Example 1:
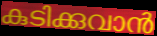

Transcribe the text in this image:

കുടിക്കുവാൻ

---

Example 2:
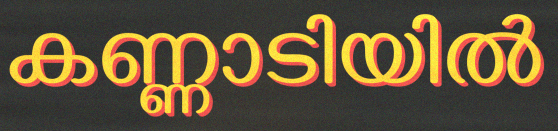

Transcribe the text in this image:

കണ്ണാടിയിൽ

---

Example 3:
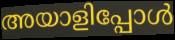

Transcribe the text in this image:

അയാളിപ്പോൾ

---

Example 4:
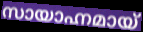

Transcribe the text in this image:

സായാഹ്നമായ്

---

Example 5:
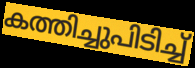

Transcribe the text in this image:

കത്തിച്ചുപിടിച്ച്